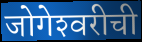
जोगेश्वरीची